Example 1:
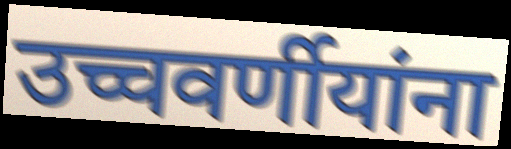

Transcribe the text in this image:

उच्चवर्णीयांना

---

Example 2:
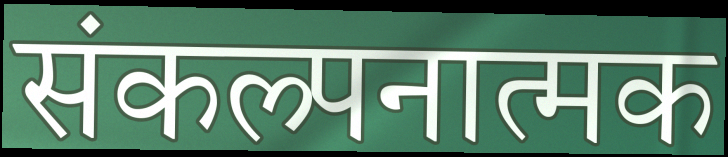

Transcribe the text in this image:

संकल्पनात्मक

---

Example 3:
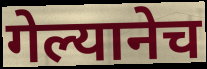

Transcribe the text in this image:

गेल्यानेच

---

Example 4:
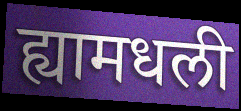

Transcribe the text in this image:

ह्यामधली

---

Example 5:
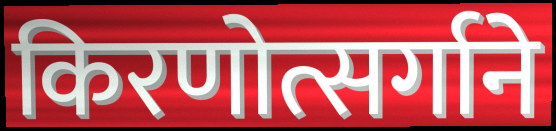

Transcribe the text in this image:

किरणोत्सर्गाने